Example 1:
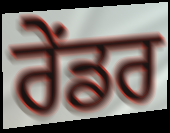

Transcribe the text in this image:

ਰੇੰਡਰ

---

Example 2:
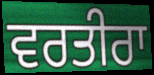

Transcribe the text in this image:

ਵਰਤੀਰਾ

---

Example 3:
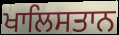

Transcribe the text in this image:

ਖਾਲਿਸਤਾਨ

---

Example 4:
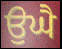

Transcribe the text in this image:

ਉਘੈ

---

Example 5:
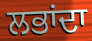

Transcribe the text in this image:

ਲਭਾਂਦਾ